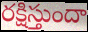
రక్షిస్తుందా